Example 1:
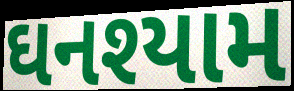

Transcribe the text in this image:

ઘનશ્યામ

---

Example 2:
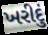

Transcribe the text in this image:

ખરીદું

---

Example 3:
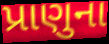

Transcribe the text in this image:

પ્રાણુના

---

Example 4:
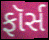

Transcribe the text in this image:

ફૉર્સ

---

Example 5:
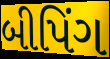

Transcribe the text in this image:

બીપિંગ